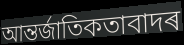
আন্তৰ্জাতিকতাবাদৰ